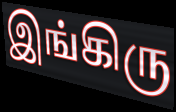
இங்கிரு